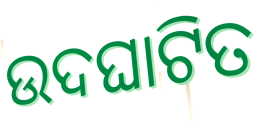
ଉଦଘାଟିତ